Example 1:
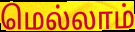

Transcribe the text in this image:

மெல்லாம்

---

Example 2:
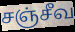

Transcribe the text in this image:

சஞ்சீவ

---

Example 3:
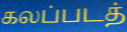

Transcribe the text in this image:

கலப்படத்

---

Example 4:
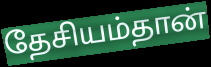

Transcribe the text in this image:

தேசியம்தான்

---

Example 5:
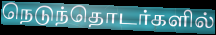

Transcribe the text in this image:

நெடுந்தொடர்களில்